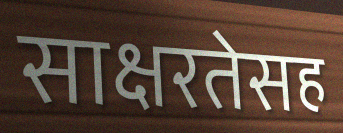
साक्षरतेसह